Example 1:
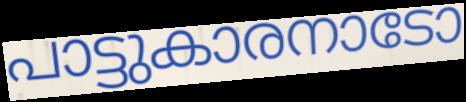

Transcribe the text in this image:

പാട്ടുകാരനാടോ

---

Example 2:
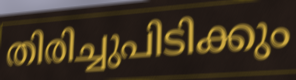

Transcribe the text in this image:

തിരിച്ചുപിടിക്കും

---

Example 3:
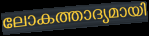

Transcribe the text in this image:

ലോകത്താദ്യമായി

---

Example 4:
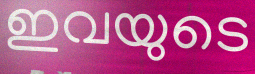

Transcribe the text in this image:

ഇവയുടെ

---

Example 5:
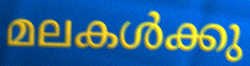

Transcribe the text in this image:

മലകൾക്കു